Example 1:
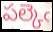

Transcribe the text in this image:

పల్కెఁ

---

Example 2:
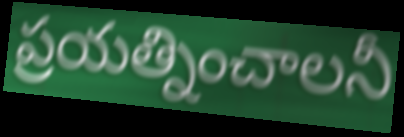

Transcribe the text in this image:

ప్రయత్నించాలనీ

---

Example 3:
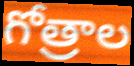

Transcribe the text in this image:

గోత్రాల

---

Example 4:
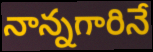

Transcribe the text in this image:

నాన్నగారినే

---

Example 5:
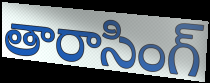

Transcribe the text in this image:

తారాసింగ్